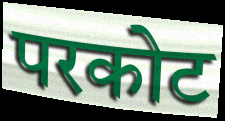
परकोट